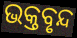
ଭକ୍ତବୃନ୍ଦ